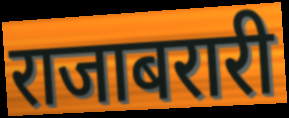
राजाबरारी